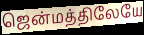
ஜென்மத்திலேயே